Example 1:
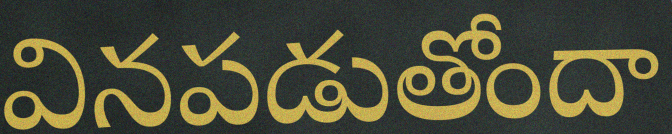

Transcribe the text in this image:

వినపడుతోందా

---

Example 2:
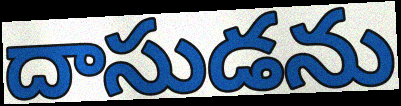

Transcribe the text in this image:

దాసుడను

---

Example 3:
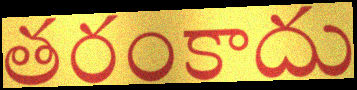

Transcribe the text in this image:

తరంకాదు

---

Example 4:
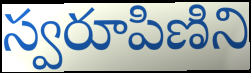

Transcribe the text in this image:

స్వరూపిణిని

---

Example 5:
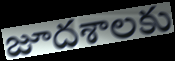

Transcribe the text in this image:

జూదశాలకు